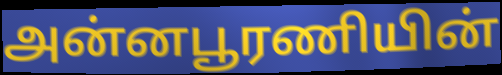
அன்னபூரணியின்